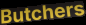
Butchers